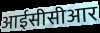
आईसीसीआर